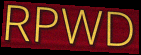
RPWD